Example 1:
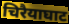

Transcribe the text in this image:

चिरैयाघाट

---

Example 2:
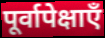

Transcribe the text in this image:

पूर्वापेक्षाएँ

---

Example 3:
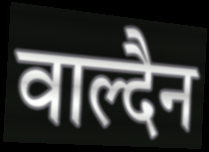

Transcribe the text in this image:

वाल्दैन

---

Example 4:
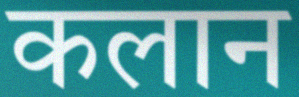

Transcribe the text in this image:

कलान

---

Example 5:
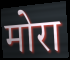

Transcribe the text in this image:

मोरा